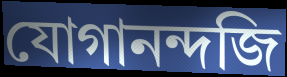
যোগানন্দজি